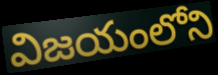
విజయంలోని